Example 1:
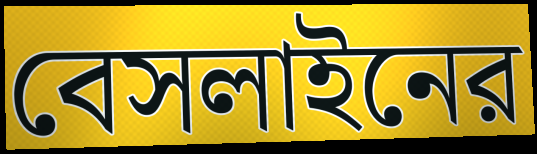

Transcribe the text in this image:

বেসলাইনের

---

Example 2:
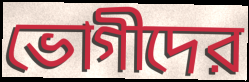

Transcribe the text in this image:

ভোগীদের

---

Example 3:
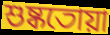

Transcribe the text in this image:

শুষ্কতোয়া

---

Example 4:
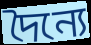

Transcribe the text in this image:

দৈন্যে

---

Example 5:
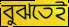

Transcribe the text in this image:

বুঝতেই